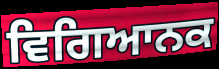
ਵਿਗਿਆਨਕ